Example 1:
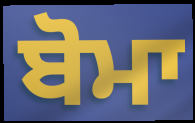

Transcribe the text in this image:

ਬੋਮਾ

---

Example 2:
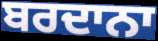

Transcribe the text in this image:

ਬਰਦਾਨਾ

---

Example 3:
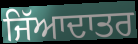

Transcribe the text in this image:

ਜਿੱਆਦਾਤਰ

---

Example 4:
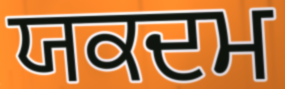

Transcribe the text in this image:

ਯਕਦਮ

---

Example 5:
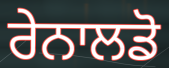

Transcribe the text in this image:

ਰੇਨਾਲਡੋ